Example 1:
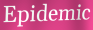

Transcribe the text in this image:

Epidemic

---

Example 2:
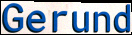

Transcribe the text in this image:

Gerund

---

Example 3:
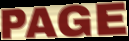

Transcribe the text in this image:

PAGE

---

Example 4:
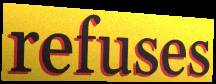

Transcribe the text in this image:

refuses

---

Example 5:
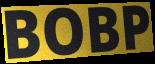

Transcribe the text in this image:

BOBP